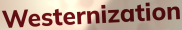
Westernization